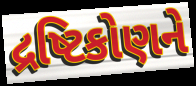
દ્રષ્ટિકોણને